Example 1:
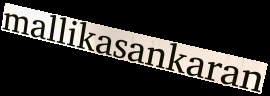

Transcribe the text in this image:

mallikasankaran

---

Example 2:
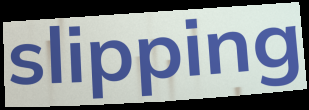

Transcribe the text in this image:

slipping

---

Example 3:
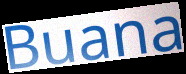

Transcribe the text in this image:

Buana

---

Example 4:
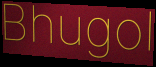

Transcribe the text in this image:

Bhugol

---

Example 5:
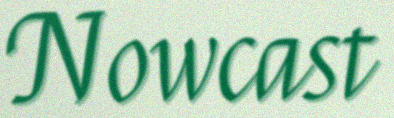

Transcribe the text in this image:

Nowcast